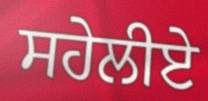
ਸਹੇਲੀਏ